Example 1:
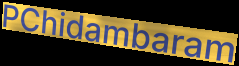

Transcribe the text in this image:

PChidambaram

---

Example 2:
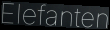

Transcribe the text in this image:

Elefanten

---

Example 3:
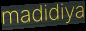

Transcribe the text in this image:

madidiya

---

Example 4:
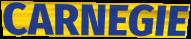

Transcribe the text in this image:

CARNEGIE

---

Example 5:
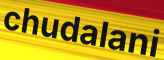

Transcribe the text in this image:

chudalani